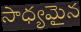
సాధ్యమైన